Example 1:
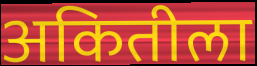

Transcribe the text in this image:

अकितीला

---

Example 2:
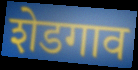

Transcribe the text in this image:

शेडगाव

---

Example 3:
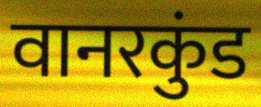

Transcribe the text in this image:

वानरकुंड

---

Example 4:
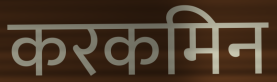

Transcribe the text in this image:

करकमिन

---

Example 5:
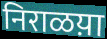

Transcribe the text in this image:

निराळय़ा